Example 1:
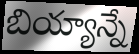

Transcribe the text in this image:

బియ్యాన్నే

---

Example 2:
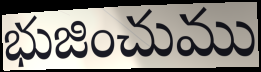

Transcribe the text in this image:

భుజించుము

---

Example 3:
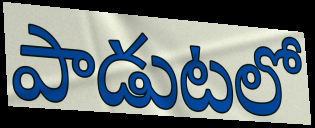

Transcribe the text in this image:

పాడుటలో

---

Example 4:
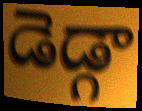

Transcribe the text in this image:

డెడ్గా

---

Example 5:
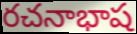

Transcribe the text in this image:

రచనాభాష